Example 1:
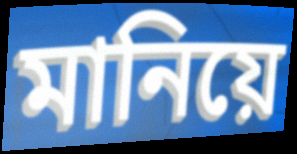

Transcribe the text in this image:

মানিয়ে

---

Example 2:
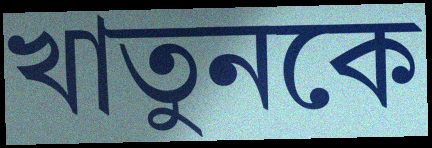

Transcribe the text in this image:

খাতুনকে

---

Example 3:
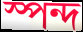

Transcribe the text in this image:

স্পন্দ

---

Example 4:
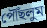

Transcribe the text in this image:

পৌঁছলুম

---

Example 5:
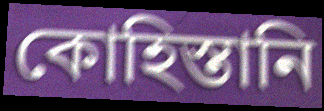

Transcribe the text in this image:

কোহিস্তানি